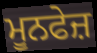
ਮੂਨਫੇਜ਼